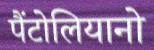
पैंटोलियानो